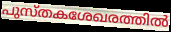
പുസ്തകശേഖരത്തിൽ